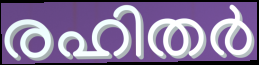
രഹിതർ